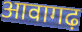
आवागढ़